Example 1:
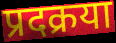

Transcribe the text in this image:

प्रदक्रया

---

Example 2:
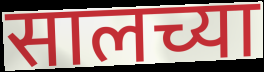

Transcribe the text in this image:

सालच्या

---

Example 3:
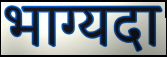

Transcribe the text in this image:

भाग्यदा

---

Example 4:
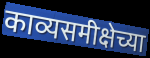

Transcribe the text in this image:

काव्यसमीक्षेच्या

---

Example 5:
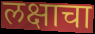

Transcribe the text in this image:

लक्षाचा